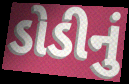
ડોડીનું